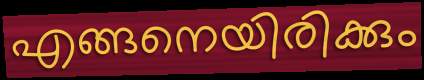
എങ്ങനെയിരിക്കും